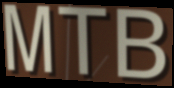
MTB